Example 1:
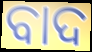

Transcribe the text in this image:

ବାଦ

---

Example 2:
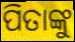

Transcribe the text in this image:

ପିତାଙ୍କୁ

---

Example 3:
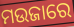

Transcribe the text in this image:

ମଉଜାରେ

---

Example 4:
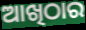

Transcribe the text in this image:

ଆଖିଠାର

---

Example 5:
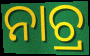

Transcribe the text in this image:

ନାଚ୍ର